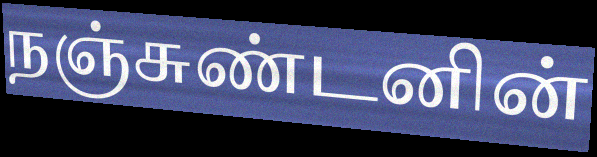
நஞ்சுண்டனின்